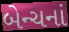
બેન્ચનાં